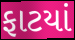
ફાટયાં